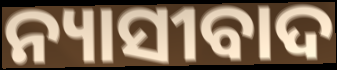
ନ୍ୟାସୀବାଦ